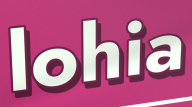
lohia